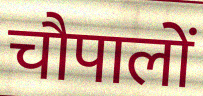
चौपालों